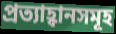
প্ৰত্যাহ্বানসমূহ